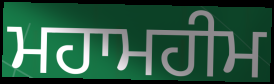
ਮਹਾਮਹੀਮ